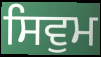
ਸਿਵੁਮ